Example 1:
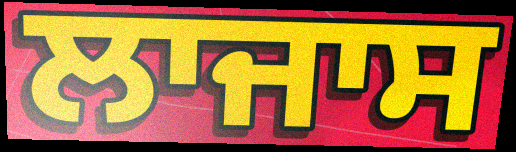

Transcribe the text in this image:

ਲਾਜਾਸ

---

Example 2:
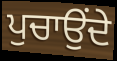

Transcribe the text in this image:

ਪੁਚਾਉਂਦੇ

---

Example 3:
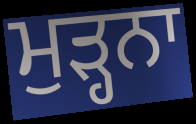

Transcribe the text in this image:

ਮੁੜ੍ਹਨਾ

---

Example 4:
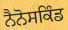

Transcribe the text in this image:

ਨੈਨੋਸਕਿੰਡ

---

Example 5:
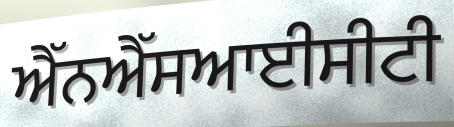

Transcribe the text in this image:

ਐੱਨਐੱਸਆਈਸੀਟੀ